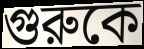
গুরুকে